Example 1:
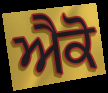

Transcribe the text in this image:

ਐਕੋ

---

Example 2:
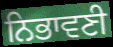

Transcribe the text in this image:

ਨਿਭਾਵਣੀ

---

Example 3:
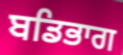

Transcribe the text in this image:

ਬਡਿਭਾਗ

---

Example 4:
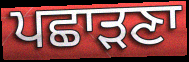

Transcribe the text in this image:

ਪਛਾੜਣਾ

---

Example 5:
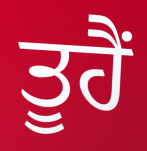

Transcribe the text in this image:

ਤੂਹੈਂ